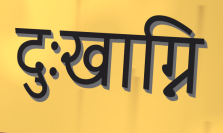
दुःखाग्नि